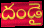
దండై